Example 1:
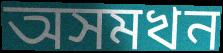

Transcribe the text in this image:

অসমখন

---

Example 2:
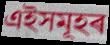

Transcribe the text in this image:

এইসমূহৰ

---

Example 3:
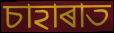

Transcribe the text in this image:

চাহাৰাত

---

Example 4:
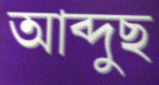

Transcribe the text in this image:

আব্দুছ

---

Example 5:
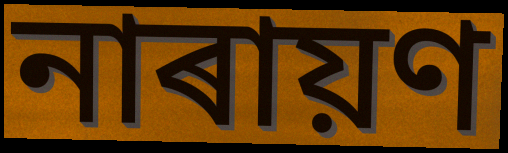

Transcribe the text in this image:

নাৰায়ণ